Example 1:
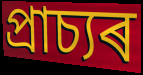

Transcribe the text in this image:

প্ৰাচ্যৰ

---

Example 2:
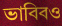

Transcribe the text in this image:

ভাবিবও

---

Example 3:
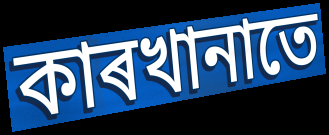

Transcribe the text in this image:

কাৰখানাতে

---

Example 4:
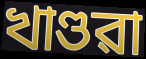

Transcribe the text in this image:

খাণ্ডৱা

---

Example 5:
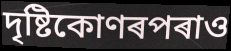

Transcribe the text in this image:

দৃষ্টিকোণৰপৰাও